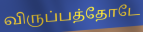
விருப்பத்தோடே